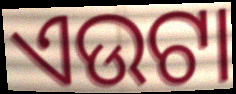
ଏଉଟା